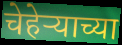
चेहेऱ्याच्या